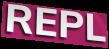
REPL